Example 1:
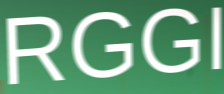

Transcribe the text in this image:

RGGI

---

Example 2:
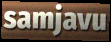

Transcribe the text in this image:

samjavu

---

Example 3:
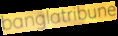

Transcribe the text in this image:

banglatribune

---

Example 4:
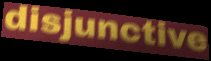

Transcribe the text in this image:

disjunctive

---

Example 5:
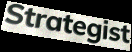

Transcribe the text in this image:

Strategist